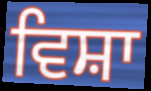
ਵਿਸ਼ਾ